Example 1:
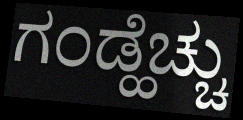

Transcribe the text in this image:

ಗಂಡ್ಹೆಚ್ಚು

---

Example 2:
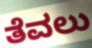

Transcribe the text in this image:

ತೆವಲು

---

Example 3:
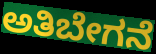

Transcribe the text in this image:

ಅತಿಬೇಗನೆ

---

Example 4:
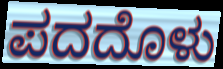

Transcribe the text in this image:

ಪದದೊಳು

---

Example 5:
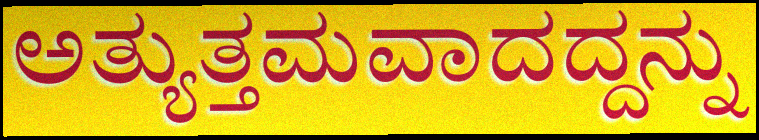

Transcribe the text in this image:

ಅತ್ಯುತ್ತಮವಾದದ್ದನ್ನು